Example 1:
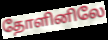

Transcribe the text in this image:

தோளினிலே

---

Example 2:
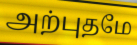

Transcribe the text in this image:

அற்புதமே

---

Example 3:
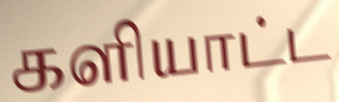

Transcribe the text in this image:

களியாட்ட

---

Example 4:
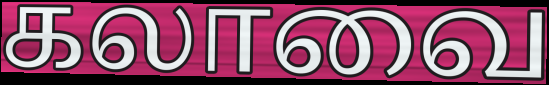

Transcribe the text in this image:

கலாவை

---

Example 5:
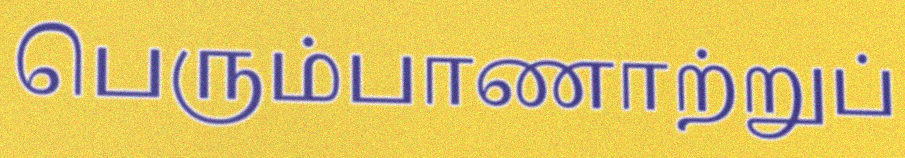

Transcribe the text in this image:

பெரும்பாணாற்றுப்